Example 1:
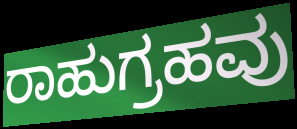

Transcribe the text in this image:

ರಾಹುಗ್ರಹವು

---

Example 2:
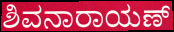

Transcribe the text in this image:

ಶಿವನಾರಾಯಣ್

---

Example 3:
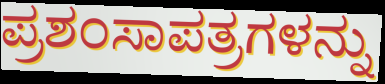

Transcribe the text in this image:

ಪ್ರಶಂಸಾಪತ್ರಗಳನ್ನು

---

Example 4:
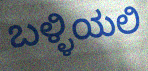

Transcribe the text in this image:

ಬಳ್ಳಿಯಲಿ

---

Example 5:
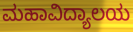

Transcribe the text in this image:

ಮಹಾವಿದ್ಯಾಲಯ